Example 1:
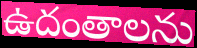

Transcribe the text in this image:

ఉదంతాలను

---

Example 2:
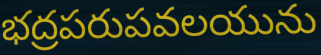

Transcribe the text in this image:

భద్రపరుపవలయును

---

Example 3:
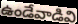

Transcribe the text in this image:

ఉండేవాడివి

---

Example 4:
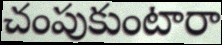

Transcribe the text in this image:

చంపుకుంటారా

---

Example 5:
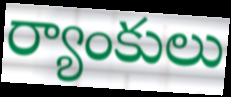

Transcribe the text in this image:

ర్యాంకులు